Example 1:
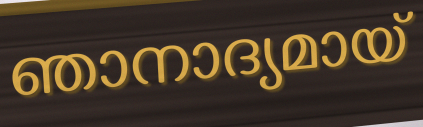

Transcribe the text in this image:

ഞാനാദ്യമായ്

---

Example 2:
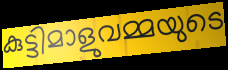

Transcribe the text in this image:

കുട്ടിമാളുവമ്മയുടെ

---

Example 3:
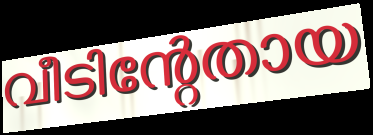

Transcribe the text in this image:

വീടിന്റേതായ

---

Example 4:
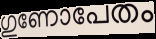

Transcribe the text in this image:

ഗുണോപേതം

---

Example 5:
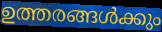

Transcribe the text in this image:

ഉത്തരങ്ങൾക്കും